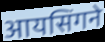
आयसिंगने